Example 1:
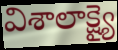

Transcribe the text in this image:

విశాలాక్ష్యై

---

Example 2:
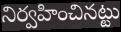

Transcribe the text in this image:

నిర్వహించినట్టు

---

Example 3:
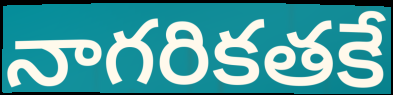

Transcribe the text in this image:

నాగరికతకే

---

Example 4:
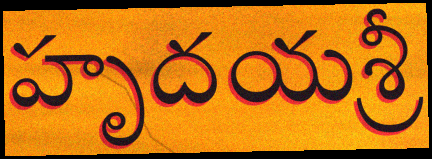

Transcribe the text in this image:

హృదయశ్రీ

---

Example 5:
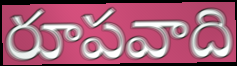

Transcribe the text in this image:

రూపవాది